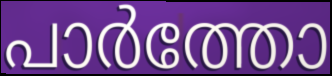
പാർത്തോ